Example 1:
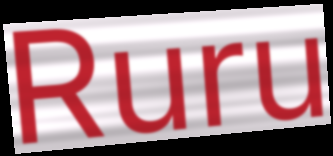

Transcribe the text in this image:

Ruru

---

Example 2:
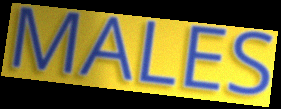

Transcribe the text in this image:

MALES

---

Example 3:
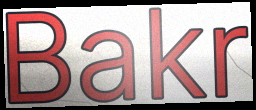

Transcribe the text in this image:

Bakr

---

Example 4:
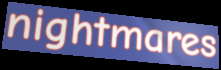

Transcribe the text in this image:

nightmares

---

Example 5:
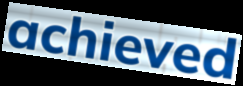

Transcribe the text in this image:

achieved